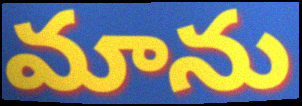
మాను